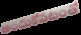
అందుకోవటంతో